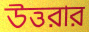
উত্তরার